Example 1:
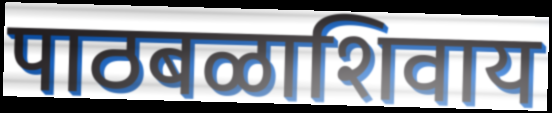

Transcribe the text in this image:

पाठबळाशिवाय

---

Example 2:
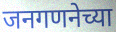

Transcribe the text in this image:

जनगणनेच्या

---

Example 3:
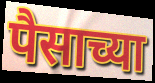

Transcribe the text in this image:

पैसाच्या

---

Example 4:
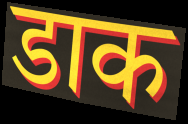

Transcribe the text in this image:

डाक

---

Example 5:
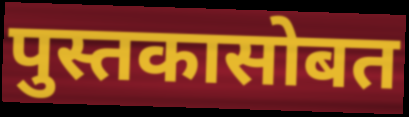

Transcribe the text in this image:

पुस्तकासोबत